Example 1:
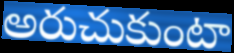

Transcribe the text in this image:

అరుచుకుంటా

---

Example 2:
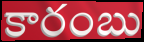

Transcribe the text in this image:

కారంబు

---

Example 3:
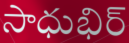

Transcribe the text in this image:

సాధుభిర్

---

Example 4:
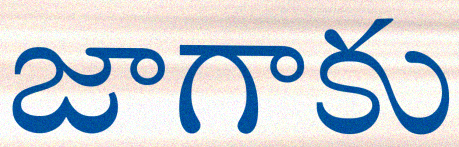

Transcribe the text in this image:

జాగాకు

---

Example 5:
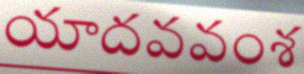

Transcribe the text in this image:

యాదవవంశ